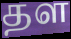
தள